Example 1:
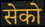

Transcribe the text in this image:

सेको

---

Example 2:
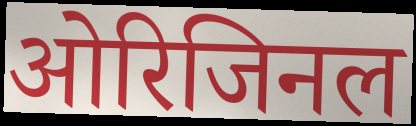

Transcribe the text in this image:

ओरिजिनल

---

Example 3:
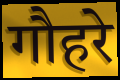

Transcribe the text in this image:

गौहरे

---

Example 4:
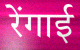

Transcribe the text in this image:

रेंगाई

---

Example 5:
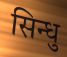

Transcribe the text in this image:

सिन्‍धु